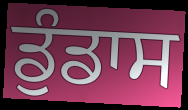
ਡੁੰਡਾਸ